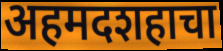
अहमदशहाचा